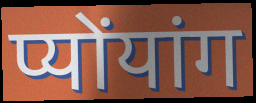
प्योंयांग